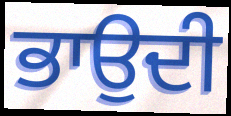
ਭਾਉਦੀ